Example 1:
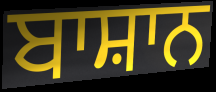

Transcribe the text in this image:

ਬਾਸ਼ਾਨ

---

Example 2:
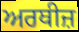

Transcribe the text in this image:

ਅਰਥੀਜ਼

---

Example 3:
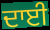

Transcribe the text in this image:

ਦਾਈ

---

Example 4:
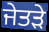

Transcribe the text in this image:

ਜੇਤੜੇ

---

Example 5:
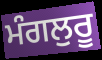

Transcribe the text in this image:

ਮੰਗਲੁਰੂ